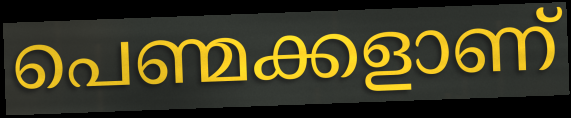
പെണ്മക്കളാണ്